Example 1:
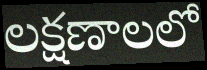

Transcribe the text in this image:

లక్షణాలలో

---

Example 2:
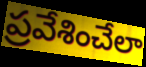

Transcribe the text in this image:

ప్రవేశించేలా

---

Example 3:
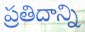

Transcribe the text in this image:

ప్రతిదాన్ని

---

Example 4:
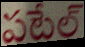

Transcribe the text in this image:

పటేల్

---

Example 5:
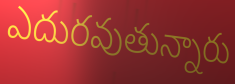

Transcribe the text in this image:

ఎదురవుతున్నారు